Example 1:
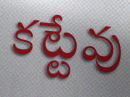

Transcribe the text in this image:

కట్టేవు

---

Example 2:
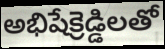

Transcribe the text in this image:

అభిషేక్రెడ్డిలతో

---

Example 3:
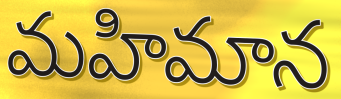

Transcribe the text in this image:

మహిమాన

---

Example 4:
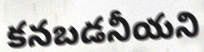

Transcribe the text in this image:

కనబడనీయని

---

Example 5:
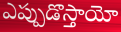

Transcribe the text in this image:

ఎప్పుడొస్తాయో